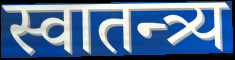
स्वातन्त्र्य